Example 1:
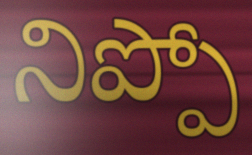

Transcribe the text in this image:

నిప్పో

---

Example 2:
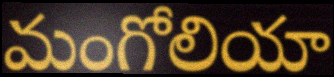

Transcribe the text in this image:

మంగోలియా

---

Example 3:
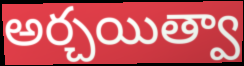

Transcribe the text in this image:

అర్చయిత్వా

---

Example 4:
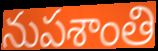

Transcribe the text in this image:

నుపశాంతి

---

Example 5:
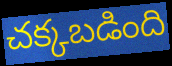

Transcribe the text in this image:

చక్కబడింది